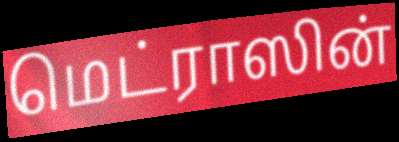
மெட்ராஸின்